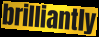
brilliantly